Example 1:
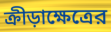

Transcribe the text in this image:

ক্রীড়াক্ষেত্রের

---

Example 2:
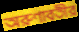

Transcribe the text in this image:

অরুণাবতীর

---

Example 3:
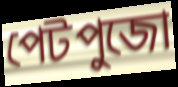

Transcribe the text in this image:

পেটপুজো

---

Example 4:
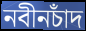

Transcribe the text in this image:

নবীনচাঁদ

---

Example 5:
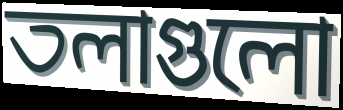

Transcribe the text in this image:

তলাগুলো